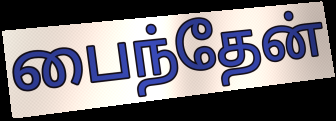
பைந்தேன்